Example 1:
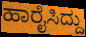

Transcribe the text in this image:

ಹಾರೈಸಿದ್ದು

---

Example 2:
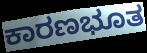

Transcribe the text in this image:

ಕಾರಣಭೂತ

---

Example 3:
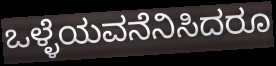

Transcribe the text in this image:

ಒಳ್ಳೆಯವನೆನಿಸಿದರೂ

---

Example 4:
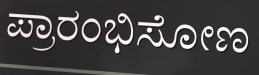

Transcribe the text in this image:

ಪ್ರಾರಂಭಿಸೋಣ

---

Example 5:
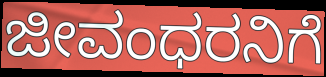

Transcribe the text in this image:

ಜೀವಂಧರನಿಗೆ